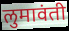
लुमावंती